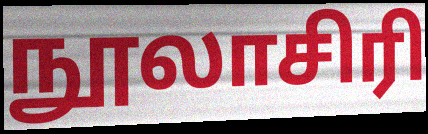
நூலாசிரி